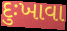
દુઃખાવા